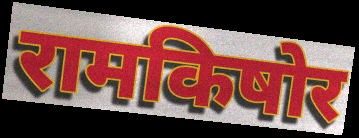
रामकिषोर